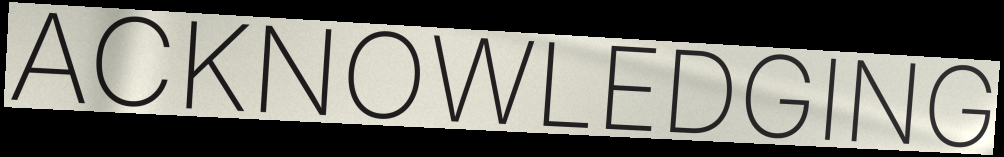
ACKNOWLEDGING